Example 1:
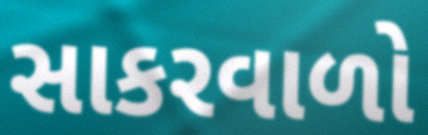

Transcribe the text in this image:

સાકરવાળો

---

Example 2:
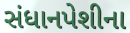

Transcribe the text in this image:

સંધાનપેશીના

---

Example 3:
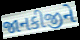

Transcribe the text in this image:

જાનકીજીને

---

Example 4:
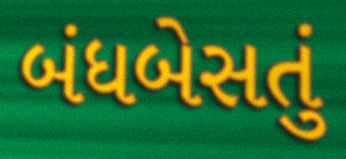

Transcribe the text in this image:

બંધબેસતું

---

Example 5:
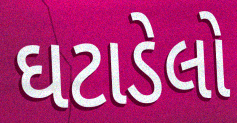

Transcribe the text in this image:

ઘટાડેલો